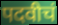
पदवीचं